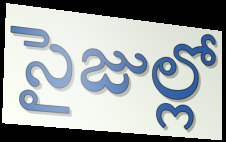
సైజుల్లో